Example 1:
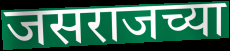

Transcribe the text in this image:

जसराजच्या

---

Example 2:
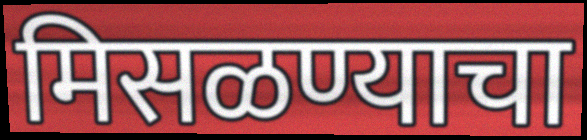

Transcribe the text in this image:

मिसळण्याचा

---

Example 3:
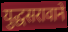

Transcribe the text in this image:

युद्धसरावाने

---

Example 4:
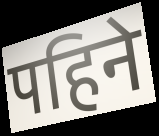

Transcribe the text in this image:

पहिने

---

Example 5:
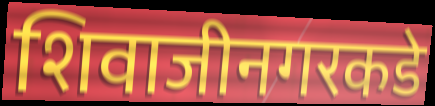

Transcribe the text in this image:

शिवाजीनगरकडे